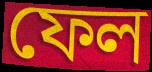
ফেল